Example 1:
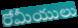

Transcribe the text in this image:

రోమీయులు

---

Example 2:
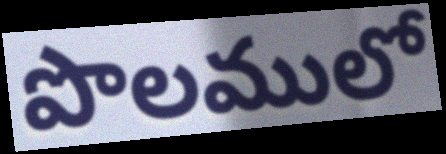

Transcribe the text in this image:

పొలములో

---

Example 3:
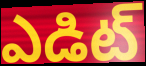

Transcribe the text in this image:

ఎడిట్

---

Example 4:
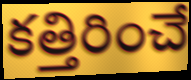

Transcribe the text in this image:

కత్తిరించే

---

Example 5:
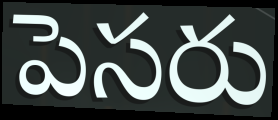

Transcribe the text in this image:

పెసరు